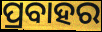
ପ୍ରବାହର